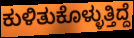
ಕುಳಿತುಕೊಳ್ಳುತ್ತಿದ್ದೆ